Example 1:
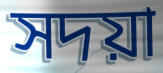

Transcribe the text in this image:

সদয়া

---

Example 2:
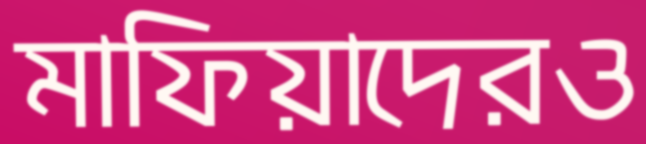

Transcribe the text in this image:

মাফিয়াদেরও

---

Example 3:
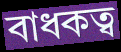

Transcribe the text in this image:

বাধকত্ব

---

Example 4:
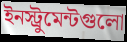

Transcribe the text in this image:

ইনস্ট্রুমেন্টগুলো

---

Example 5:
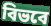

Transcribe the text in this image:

বিভবে